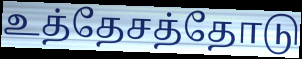
உத்தேசத்தோடு